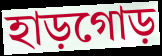
হাড়গোড়